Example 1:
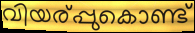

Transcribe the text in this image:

വിയര്പ്പുകൊണ്ട്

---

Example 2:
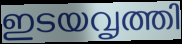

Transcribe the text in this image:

ഇടയവൃത്തി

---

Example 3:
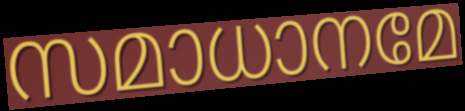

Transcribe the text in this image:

സമാധാനമേ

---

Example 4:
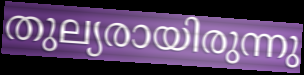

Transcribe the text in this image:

തുല്യരായിരുന്നു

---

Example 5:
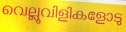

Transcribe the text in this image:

വെല്ലുവിളികളോടു